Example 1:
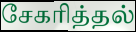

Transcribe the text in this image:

சேகரித்தல்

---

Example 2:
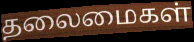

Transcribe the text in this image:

தலைமைகள்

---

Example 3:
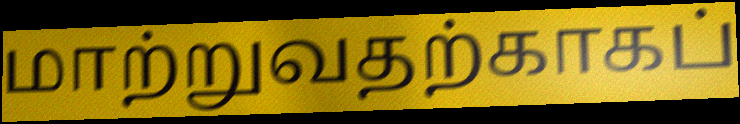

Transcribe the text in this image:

மாற்றுவதற்காகப்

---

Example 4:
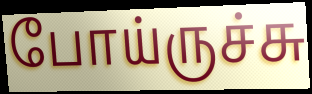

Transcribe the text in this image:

போய்ருச்சு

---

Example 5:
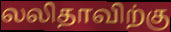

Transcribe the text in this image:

லலிதாவிற்கு